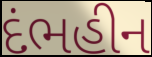
દંભહીન